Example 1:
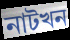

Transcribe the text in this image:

নাটখন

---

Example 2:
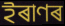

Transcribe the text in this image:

ইৰাণৰ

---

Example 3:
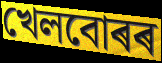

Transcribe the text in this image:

খেলবোৰৰ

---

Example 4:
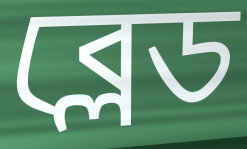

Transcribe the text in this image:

ব্লেড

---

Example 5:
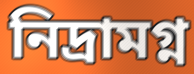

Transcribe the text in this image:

নিদ্ৰামগ্ন